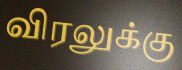
விரலுக்கு